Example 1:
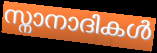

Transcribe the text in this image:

സ്നാനാദികൾ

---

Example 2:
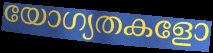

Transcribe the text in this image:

യോഗ്യതകളോ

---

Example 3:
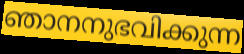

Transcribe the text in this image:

ഞാനനുഭവിക്കുന്ന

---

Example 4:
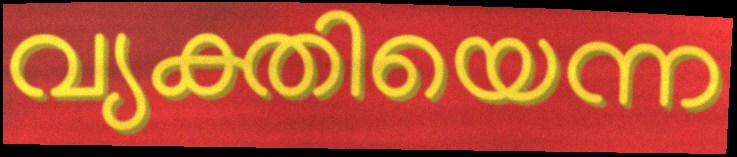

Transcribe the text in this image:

വ്യക്തിയെന്ന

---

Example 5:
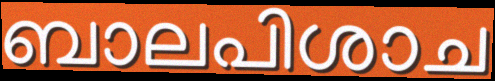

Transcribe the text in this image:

ബാലപിശാച